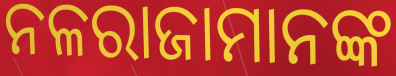
ନଳରାଜାମାନଙ୍କ